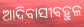
ଆଦିବାସୀବହୁଳ